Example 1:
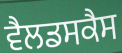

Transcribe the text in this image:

ਵੈਲਡਸਕੈਸ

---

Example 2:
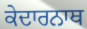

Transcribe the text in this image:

ਕੇਦਾਰਨਾਥ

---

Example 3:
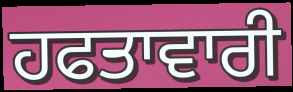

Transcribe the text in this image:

ਹਫਤਾਵਾਰੀ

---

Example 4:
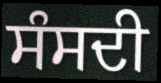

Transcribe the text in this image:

ਸੰਸਦੀ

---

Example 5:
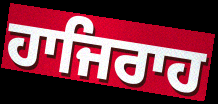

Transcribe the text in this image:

ਹਾਜਿਰਾਹ